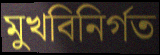
মুখবিনির্গত